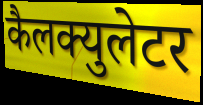
कैलक्युलेटर